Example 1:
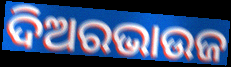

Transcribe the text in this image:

ଦିଅରଭାଉଜ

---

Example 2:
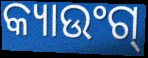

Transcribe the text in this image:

କ୍ୟାଉଂଗ୍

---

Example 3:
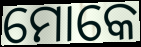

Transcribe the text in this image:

ମୋକେ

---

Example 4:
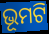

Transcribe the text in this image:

ଭୂମଟି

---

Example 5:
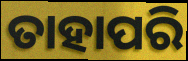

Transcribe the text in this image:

ତାହାପରି